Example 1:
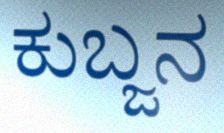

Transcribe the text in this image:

ಕುಬ್ಜನ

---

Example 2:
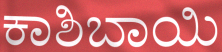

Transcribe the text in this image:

ಕಾಶಿಬಾಯಿ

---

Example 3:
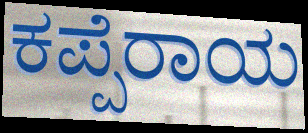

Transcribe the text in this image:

ಕಪ್ಪೆರಾಯ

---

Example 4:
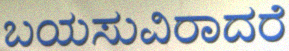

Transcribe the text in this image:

ಬಯಸುವಿರಾದರೆ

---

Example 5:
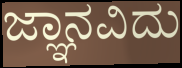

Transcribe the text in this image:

ಜ್ಞಾನವಿದು